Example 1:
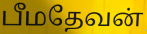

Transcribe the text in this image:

பீமதேவன்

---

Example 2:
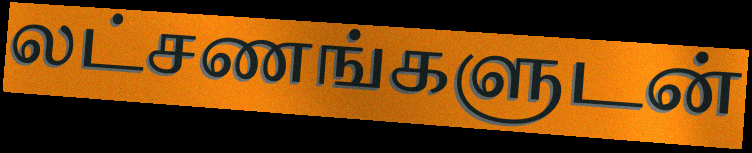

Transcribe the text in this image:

லட்சணங்களுடன்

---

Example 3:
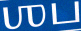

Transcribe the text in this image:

ஶப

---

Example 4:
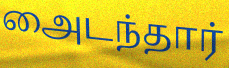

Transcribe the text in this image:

அைடந்தார்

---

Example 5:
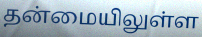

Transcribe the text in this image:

தன்மையிலுள்ள